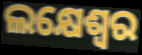
ଲକ୍ଷେଶ୍ୱର